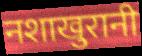
नशाखुरानी